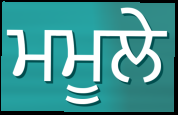
ਮਮੂਲੇ